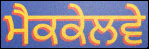
ਮੈਕਕੇਲਵੇ